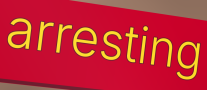
arresting